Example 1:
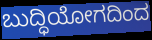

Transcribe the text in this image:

ಬುದ್ಧಿಯೋಗದಿಂದ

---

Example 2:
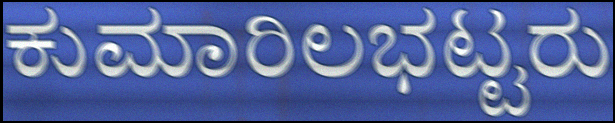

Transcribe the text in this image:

ಕುಮಾರಿಲಭಟ್ಟರು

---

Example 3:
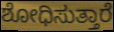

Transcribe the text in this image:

ಶೋಧಿಸುತ್ತಾರೆ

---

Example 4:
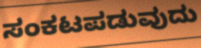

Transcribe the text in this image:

ಸಂಕಟಪಡುವುದು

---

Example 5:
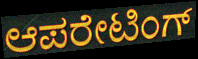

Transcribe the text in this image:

ಆಪರೇಟಿಂಗ್